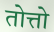
तोत्तो